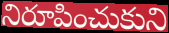
నిరూపించుకుని